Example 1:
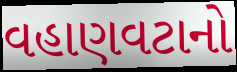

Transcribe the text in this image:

વહાણવટાનો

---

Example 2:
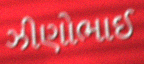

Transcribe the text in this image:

ઝીણોભાઈ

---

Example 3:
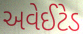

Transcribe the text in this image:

અવેઈટેડ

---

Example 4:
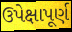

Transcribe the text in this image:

ઉપેક્ષાપૂર્ણ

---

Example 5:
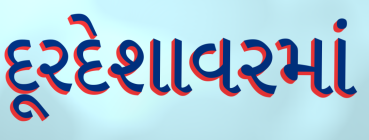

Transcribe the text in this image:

દૂરદેશાવરમાં